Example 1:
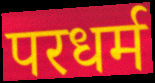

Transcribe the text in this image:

परधर्म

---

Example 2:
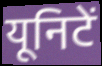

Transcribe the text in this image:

यूनिटें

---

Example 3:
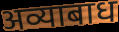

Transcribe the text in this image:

अव्याबाध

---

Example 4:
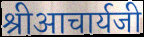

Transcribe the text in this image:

श्रीआचार्यजी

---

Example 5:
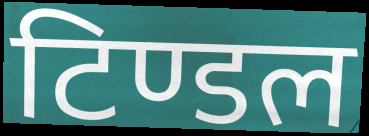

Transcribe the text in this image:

टिण्डल